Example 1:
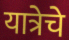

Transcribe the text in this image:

यात्रेचे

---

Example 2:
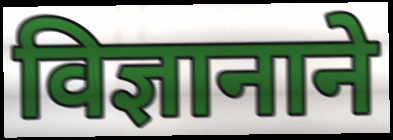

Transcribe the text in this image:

विज्ञानाने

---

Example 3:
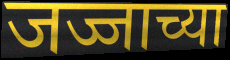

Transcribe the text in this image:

जज्जाच्या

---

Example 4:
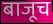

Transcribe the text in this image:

बाजूच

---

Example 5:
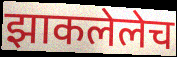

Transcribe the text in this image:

झाकलेलेच